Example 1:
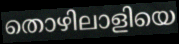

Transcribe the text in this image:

തൊഴിലാളിയെ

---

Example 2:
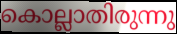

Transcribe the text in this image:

കൊല്ലാതിരുന്നു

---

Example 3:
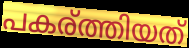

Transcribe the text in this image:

പകര്ത്തിയത്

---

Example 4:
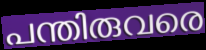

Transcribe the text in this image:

പന്തിരുവരെ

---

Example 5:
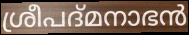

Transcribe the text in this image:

ശ്രീപദ്മനാഭൻ